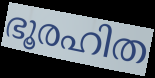
ഭൂരഹിത